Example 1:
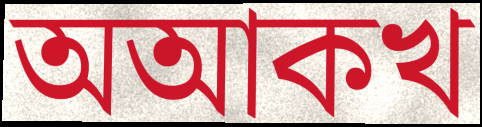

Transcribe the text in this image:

অআকখ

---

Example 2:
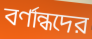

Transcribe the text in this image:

বর্ণান্ধদের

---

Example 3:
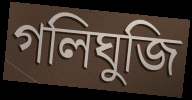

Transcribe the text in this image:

গলিঘুজি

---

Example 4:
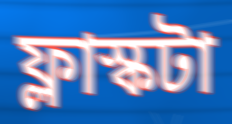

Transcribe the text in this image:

ফ্লাস্কটা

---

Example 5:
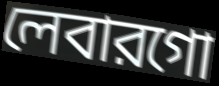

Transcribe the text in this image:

লেবারগো